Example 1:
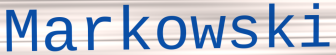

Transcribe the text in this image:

Markowski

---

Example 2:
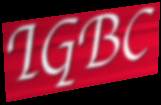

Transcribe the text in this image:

IGBC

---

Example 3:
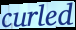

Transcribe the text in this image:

curled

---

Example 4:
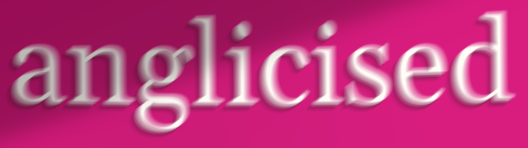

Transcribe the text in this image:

anglicised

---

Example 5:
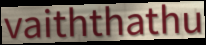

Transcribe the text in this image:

vaiththathu